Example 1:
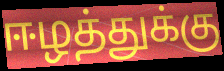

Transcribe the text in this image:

ஈழத்துக்கு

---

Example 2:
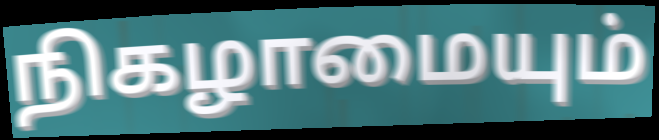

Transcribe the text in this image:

நிகழாமையும்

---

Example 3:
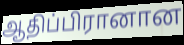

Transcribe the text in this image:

ஆதிப்பிரானான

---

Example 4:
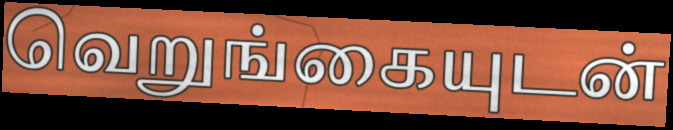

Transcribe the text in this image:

வெறுங்கையுடன்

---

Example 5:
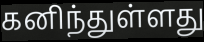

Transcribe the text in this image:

கனிந்துள்ளது